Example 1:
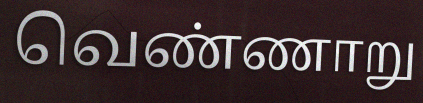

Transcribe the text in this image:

வெண்ணாறு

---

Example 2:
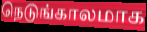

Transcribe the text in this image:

நெடுங்காலமாக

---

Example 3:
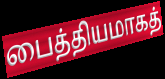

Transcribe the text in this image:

பைத்தியமாகத்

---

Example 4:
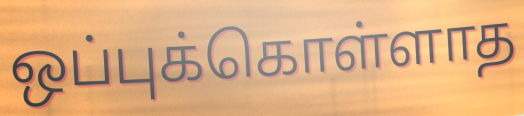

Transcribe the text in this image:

ஒப்புக்கொள்ளாத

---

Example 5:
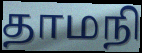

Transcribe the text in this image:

தாமநி